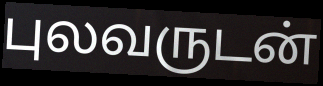
புலவருடன்